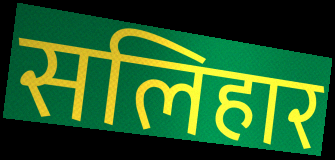
सलिहार